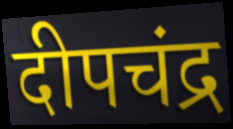
दीपचंद्र